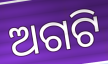
ଅଗଟି